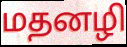
மதனழி